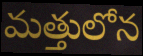
మత్తులోన